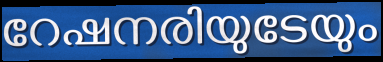
റേഷനരിയുടേയും